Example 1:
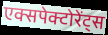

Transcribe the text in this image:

एक्सपेक्टोरेंट्स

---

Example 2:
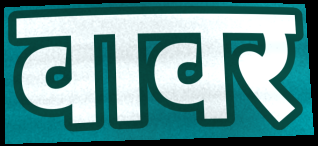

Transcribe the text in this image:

वावर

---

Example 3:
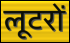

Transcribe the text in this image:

लूटरों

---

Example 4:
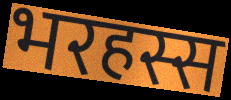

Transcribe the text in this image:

भरहस्स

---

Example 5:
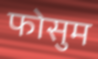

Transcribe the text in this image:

फोसुम